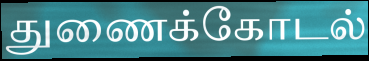
துணைக்கோடல்